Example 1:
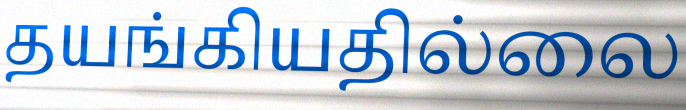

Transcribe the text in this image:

தயங்கியதில்லை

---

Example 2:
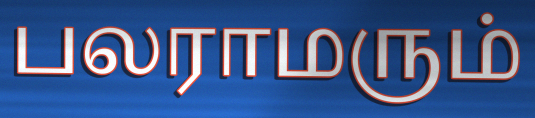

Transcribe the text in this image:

பலராமரும்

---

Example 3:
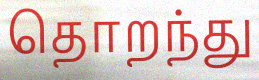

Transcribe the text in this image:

தொறந்து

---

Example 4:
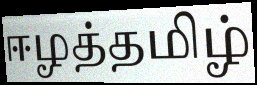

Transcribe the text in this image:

ஈழத்தமிழ்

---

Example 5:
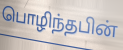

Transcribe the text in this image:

பொழிந்தபின்